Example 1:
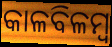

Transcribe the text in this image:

କାଳବିଳମ୍ବ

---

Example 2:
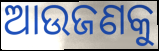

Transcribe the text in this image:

ଆଉଜଣକୁ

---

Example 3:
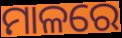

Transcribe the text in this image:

ମାଳରେ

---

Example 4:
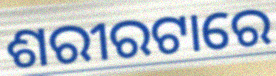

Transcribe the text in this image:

ଶରୀରଟାରେ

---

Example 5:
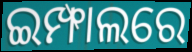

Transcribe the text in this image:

ଇମ୍ଫାଲରେ